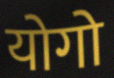
योगो